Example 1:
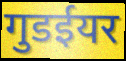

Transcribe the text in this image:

गुडईयर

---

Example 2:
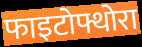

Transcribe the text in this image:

फाइटोफ्थोरा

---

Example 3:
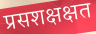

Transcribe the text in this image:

प्रसशक्षक्षत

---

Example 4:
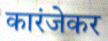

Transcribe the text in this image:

कारंजेकर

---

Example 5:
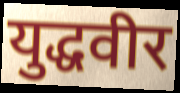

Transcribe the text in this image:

युद्धवीर